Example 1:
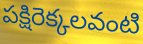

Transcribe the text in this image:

పక్షిరెక్కలవంటి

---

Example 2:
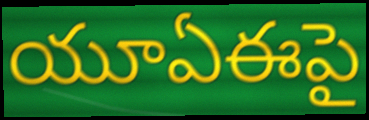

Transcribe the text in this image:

యూఏఈపై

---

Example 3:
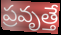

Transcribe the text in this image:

ప్రవృత్తే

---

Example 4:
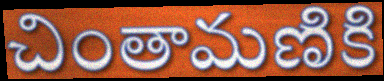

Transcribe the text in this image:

చింతామణికి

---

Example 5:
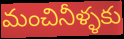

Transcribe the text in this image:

మంచినీళ్ళకు